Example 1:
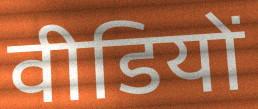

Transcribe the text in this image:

वीडियों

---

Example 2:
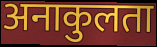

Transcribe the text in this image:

अनाकुलता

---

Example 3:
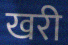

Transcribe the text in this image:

खरी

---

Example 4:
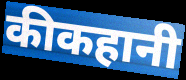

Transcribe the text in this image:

कीकहानी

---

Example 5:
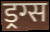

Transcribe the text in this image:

ड्रग्स